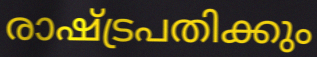
രാഷ്ട്രപതിക്കും